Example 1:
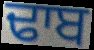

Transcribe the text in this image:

ਢਾਬ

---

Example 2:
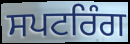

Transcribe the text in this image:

ਸਪਟਰਿੰਗ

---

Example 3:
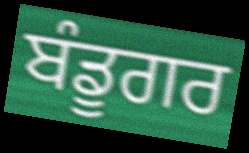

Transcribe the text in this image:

ਬੰਡੂਗਰ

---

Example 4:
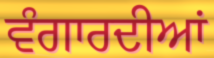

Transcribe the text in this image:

ਵੰਗਾਰਦੀਆਂ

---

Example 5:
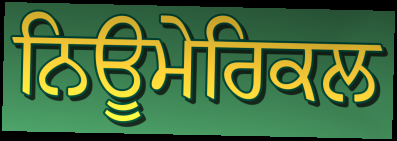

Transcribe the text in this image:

ਨਿਊਮੇਰਿਕਲ